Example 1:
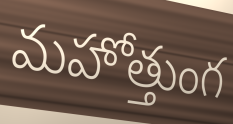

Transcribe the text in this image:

మహోత్తుంగ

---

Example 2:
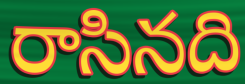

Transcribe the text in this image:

రాసినది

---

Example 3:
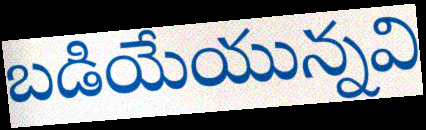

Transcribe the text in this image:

బడియేయున్నవి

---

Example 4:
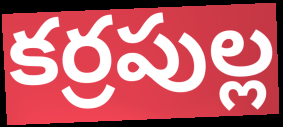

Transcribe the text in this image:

కర్రపుల్ల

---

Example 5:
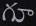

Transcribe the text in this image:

గూ